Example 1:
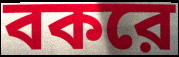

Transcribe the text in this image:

বকরে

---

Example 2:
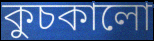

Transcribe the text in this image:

কুচকালো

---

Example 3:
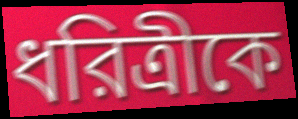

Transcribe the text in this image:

ধরিত্রীকে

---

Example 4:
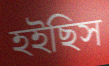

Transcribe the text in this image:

হইছিস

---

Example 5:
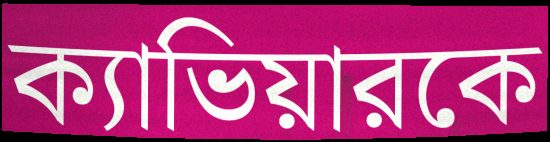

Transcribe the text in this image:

ক্যাভিয়ারকে